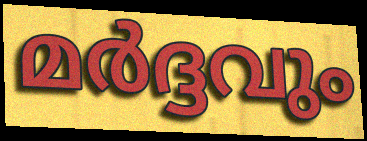
മർദ്ദവും